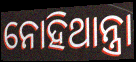
ନୋହିଥାନ୍ତ୍ରା